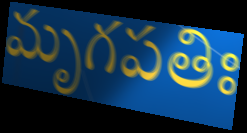
మృగపతిః